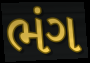
ભંગ